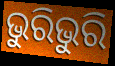
ଭୁରିଭୁରି